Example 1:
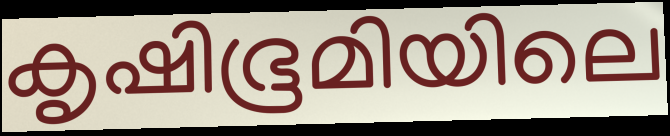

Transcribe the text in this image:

കൃഷിഭൂമിയിലെ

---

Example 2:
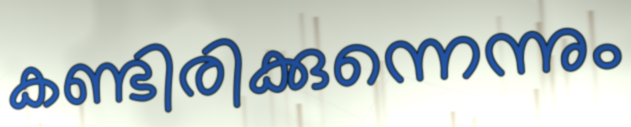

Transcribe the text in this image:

കണ്ടിരിക്കുന്നെന്നും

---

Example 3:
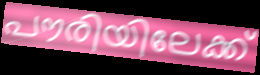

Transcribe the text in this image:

പൗരിയിലേക്ക്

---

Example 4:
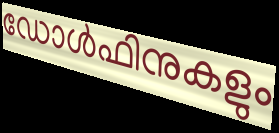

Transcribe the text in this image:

ഡോൾഫിനുകളും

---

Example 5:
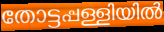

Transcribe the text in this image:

തോട്ടപ്പള്ളിയിൽ